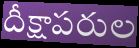
దీక్షాపరుల